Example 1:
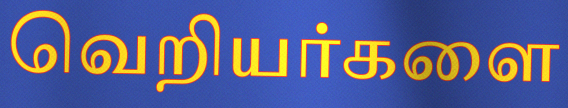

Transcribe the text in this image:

வெறியர்களை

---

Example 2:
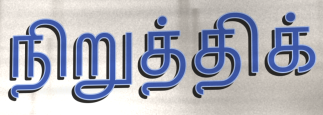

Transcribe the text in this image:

நிறுத்திக்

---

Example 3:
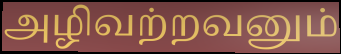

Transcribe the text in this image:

அழிவற்றவனும்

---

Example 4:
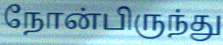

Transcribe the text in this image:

நோன்பிருந்து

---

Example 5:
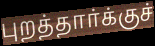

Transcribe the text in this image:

புறத்தார்க்குச்